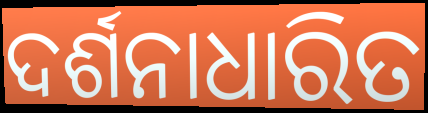
ଦର୍ଶନାଧାରିତ